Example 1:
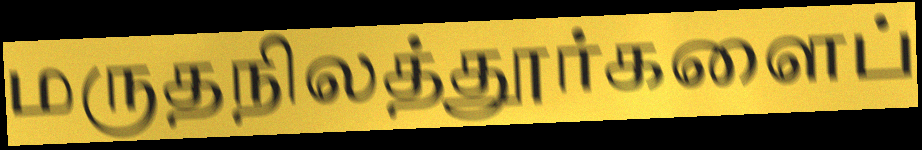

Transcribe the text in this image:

மருதநிலத்தூர்களைப்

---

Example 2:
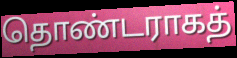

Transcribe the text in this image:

தொண்டராகத்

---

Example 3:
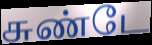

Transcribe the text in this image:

சுண்டே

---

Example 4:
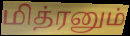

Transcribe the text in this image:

மித்ரனும்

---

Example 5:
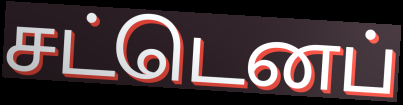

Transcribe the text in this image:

சட்டெனப்